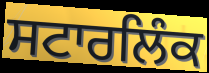
ਸਟਾਰਲਿੰਕ